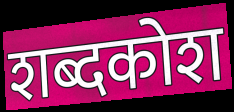
शब्दकोश